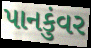
પાનકુંવર